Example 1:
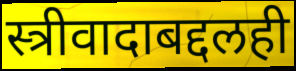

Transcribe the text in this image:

स्त्रीवादाबद्दलही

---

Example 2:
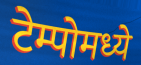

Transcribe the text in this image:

टेम्पोमध्ये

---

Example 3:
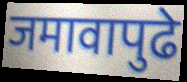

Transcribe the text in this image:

जमावापुढे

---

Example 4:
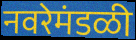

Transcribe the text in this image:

नवरेमंडळी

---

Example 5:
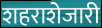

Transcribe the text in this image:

शहराशेजारी